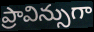
ప్రావిన్సుగా